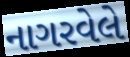
નાગરવેલે